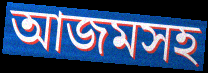
আজমসহ